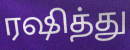
ரஷித்து